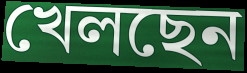
খেলছেন